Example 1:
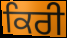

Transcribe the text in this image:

ਕਿਰੀ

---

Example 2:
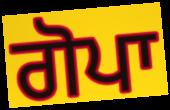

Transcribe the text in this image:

ਗੋਪਾ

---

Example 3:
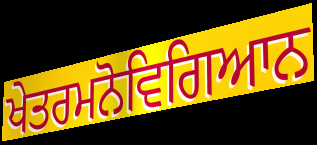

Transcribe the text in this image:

ਖੇਤਰਮਨੋਵਿਗਿਆਨ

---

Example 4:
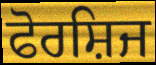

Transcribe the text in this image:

ਫੋਰਸ਼ਿਜ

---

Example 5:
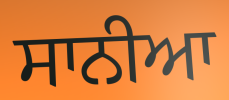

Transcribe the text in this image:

ਸਾਨੀਆ